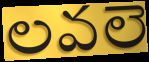
లవలె